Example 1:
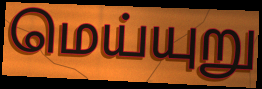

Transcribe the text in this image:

மெய்யுறு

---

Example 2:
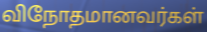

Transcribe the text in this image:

விநோதமானவர்கள்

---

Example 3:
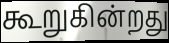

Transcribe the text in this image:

கூறுகின்றது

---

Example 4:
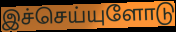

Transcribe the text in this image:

இச்செய்யுளோடு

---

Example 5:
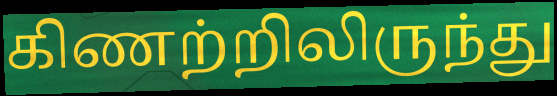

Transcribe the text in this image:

கிணற்றிலிருந்து